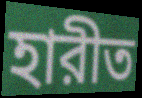
হারীত